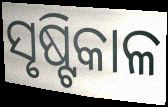
ସୃଷ୍ଟିକାଳ